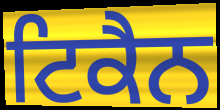
ਟਿਕੈਨ